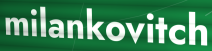
milankovitch